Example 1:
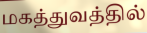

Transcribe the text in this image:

மகத்துவத்தில்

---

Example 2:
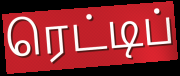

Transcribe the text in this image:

ரெட்டிப்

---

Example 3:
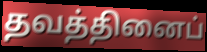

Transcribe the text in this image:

தவத்தினைப்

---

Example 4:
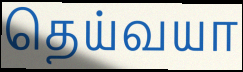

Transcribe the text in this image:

தெய்வயா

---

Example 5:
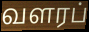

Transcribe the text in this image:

வளரப்